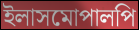
ইলাসমোপালপি